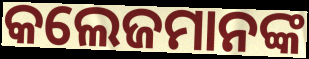
କଲେଜମାନଙ୍କ